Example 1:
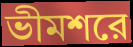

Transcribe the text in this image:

ভীমশরে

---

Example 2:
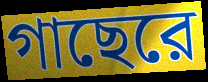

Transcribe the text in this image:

গাছেরে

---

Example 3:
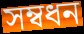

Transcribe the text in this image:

সম্বধন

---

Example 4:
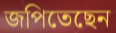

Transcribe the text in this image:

জপিতেছেন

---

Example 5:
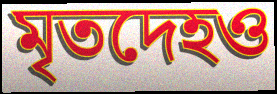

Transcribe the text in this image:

মৃতদেহও